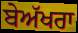
ਬੇਅੱਖਰਾ